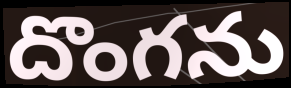
దొంగను